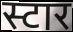
स्टार